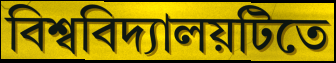
বিশ্ববিদ্যালয়টিতে